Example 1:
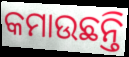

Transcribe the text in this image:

କମାଉଛନ୍ତି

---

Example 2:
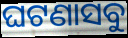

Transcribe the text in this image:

ଘଟଣାସବୁ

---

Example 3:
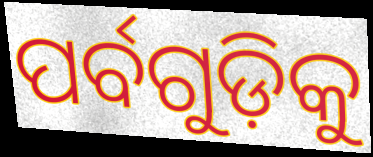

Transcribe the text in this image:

ପର୍ବଗୁଡ଼ିକୁ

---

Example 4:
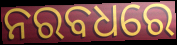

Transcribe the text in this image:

ନରବଧରେ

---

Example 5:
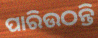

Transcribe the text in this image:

ପାରିଉଠନ୍ତି